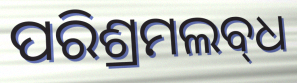
ପରିଶ୍ରମଲବ୍‍ଧ